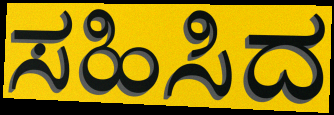
ಸಹಿಸಿದ